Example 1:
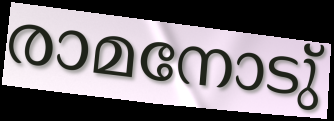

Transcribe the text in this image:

രാമനോടു്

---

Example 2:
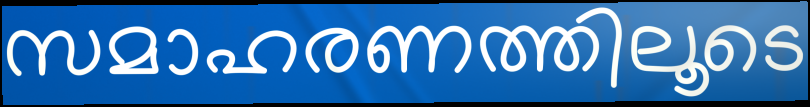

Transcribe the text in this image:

സമാഹരണത്തിലൂടെ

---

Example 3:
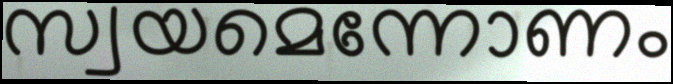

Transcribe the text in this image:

സ്വയമെന്നോണം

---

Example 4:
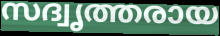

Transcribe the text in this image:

സദ്വൃത്തരായ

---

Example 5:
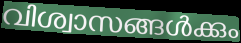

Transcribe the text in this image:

വിശ്വാസങ്ങൾക്കും